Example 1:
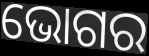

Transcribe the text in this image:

ଭୋଗର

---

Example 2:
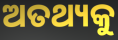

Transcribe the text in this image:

ଅତଥ୍ୟକୁ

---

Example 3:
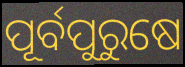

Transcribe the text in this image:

ପୂର୍ବପୁରୁଷେ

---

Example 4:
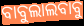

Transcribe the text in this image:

ବାବୁଲାଲବାବୁ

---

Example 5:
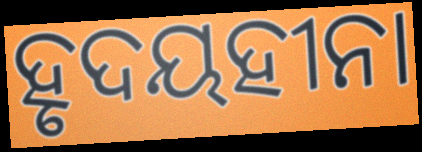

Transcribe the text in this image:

ହୃଦୟହୀନା